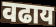
वढाय